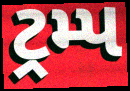
ટ્રમ્પ